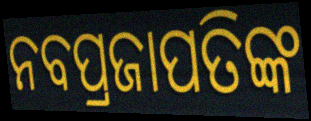
ନବପ୍ରଜାପତିଙ୍କ